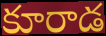
కూరాడ